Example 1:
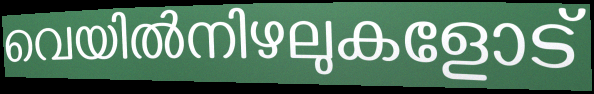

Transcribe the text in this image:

വെയിൽനിഴലുകളോട്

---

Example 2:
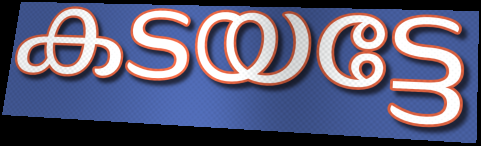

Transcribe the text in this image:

കടയട്ടേ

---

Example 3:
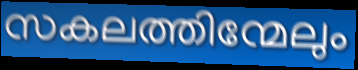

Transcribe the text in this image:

സകലത്തിന്മേലും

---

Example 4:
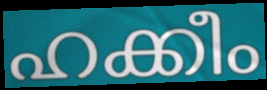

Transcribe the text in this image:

ഹക്കീം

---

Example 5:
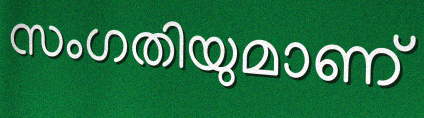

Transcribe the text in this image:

സംഗതിയുമാണ്